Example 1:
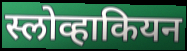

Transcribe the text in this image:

स्लोव्हाकियन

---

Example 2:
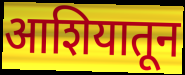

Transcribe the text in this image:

आशियातून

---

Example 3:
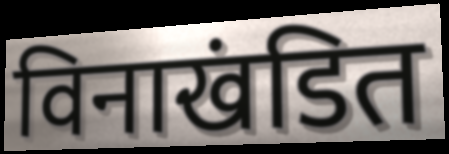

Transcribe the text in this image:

विनाखंडित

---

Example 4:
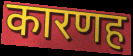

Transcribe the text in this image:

कारणह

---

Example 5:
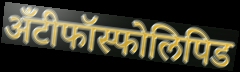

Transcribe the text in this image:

अँटीफॉस्फोलिपिड